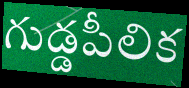
గుడ్డపీలిక